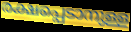
രക്ഷപ്പെടാനുള്ള